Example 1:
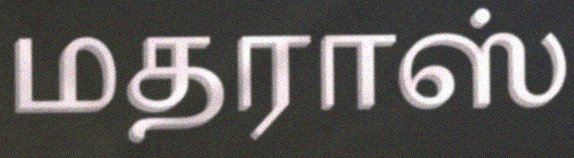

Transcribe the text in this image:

மதராஸ்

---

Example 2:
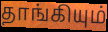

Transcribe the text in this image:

தாங்கியும்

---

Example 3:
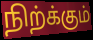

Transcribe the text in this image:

நிற்க்கும்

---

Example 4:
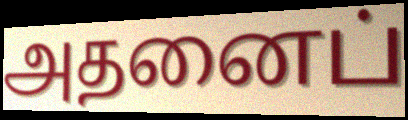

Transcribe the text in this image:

அதனைப்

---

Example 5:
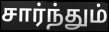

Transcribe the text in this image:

சார்ந்தும்